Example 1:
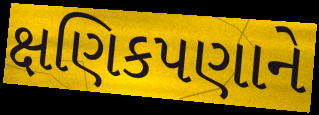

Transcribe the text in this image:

ક્ષણિકપણાને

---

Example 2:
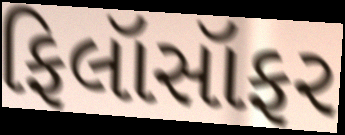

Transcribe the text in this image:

ફિલૉસૉફર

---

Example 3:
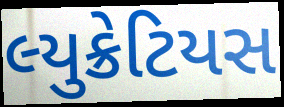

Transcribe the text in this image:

લ્યુક્રેટિયસ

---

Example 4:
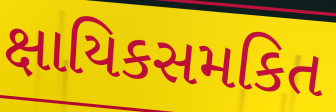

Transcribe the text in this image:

ક્ષાયિકસમકિત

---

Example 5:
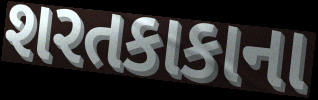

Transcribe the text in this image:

શરતકાકાના